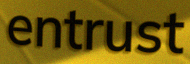
entrust